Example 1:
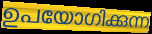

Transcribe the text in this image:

ഉപയോഗിക്കുന്ന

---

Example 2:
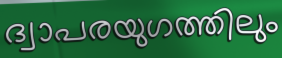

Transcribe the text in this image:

ദ്വാപരയുഗത്തിലും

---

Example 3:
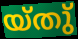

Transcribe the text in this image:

യ്തു്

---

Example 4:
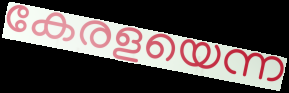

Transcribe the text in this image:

കേരളയെന്ന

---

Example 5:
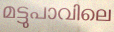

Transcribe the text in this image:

മട്ടുപാവിലെ